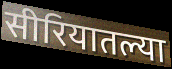
सीरियातल्या